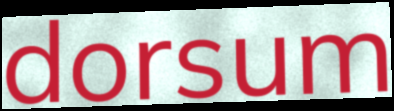
dorsum